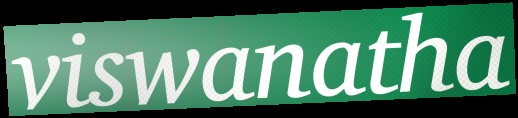
viswanatha